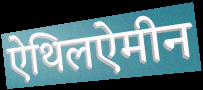
ऐथिलऐमीन